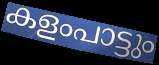
കളംപാട്ടും